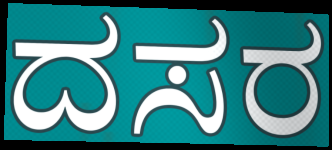
ದಸರ